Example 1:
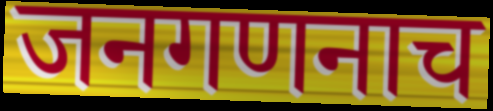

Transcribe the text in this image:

जनगणनाच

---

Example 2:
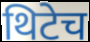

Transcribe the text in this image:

थिटेच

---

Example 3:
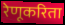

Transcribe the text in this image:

रेणूकरिता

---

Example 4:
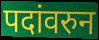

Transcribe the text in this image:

पदांवरुन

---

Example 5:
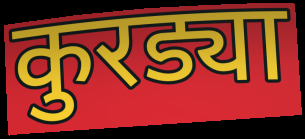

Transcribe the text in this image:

कुरड्या